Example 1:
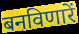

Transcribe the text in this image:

बनविणारें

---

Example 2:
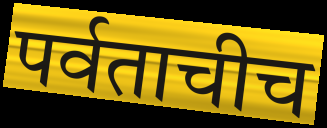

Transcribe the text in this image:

पर्वताचीच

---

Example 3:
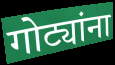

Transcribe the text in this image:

गोट्यांना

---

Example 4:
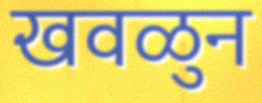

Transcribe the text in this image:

खवळुन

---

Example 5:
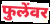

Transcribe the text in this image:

फुलेंवर